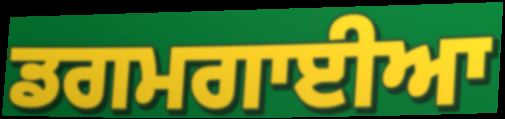
ਡਗਮਗਾਈਆ